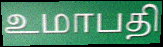
உமாபதி